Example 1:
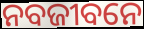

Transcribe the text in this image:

ନବଜୀବନେ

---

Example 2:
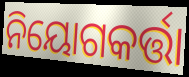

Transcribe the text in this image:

ନିୟୋଗକର୍ତ୍ତା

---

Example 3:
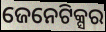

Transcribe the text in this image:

ଜେନେଟିକ୍ସର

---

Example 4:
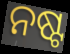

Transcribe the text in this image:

ନଷ୍ଟ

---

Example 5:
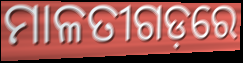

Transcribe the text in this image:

ମାଳତୀଗଡ଼ରେ